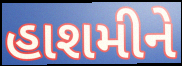
હાશમીને